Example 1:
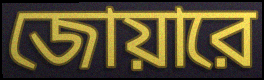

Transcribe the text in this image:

জোয়ারে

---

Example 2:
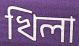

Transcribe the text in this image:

খিলা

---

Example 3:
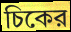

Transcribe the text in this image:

চিকের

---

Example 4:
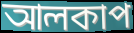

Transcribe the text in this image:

আলকাপ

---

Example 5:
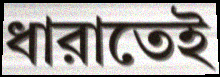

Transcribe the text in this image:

ধারাতেই